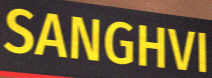
SANGHVI